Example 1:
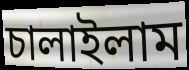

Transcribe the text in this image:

চালাইলাম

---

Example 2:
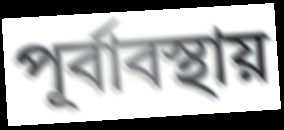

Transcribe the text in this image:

পূর্বাবস্থায়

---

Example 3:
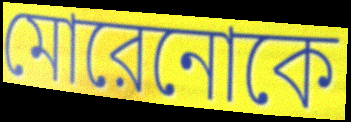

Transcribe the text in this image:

মোরেনোকে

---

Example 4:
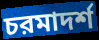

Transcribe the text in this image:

চরমাদর্শ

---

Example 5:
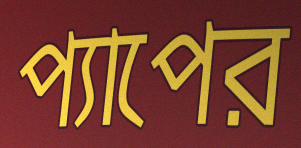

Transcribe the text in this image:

প্যাপের